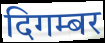
दिगम्बर